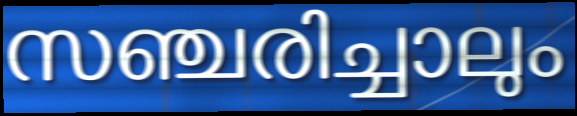
സഞ്ചരിച്ചാലും